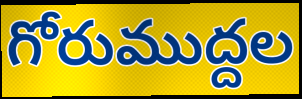
గోరుముద్దల